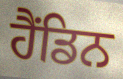
ਹੈਂਡਿਨ